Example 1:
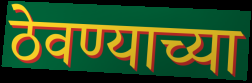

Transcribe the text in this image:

ठेवण्याच्या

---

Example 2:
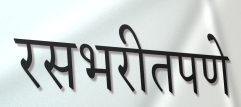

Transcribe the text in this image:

रसभरीतपणे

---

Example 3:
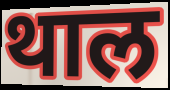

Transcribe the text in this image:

थाल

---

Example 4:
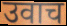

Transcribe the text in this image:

उवाच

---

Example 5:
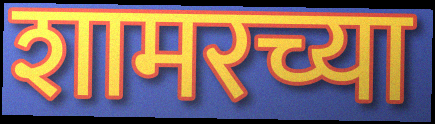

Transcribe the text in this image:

शामरच्या